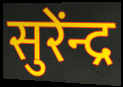
सुरेंन्द्र